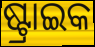
ଷ୍ଟ୍ରାଇକ